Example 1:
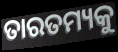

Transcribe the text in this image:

ତାରତମ୍ୟକୁ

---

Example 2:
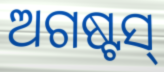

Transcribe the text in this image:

ଅଗଷ୍ଟସ୍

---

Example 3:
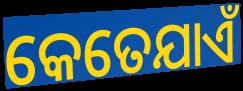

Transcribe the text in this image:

କେତେଯାଏଁ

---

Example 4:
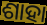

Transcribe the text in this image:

ଶାହା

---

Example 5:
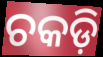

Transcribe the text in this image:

ଚକଡ଼ି